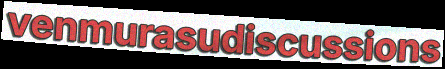
venmurasudiscussions